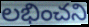
లభించని